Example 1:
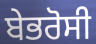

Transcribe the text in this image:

ਬੇਭਰੋਸੀ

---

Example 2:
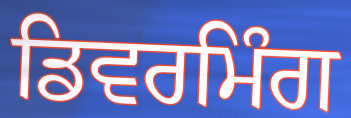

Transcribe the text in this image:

ਡਿਵਰਮਿੰਗ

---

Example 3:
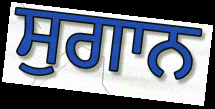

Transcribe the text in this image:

ਸੁਗਾਨ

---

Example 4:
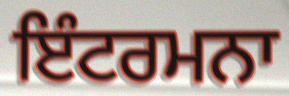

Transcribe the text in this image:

ਇੰਟਰਮਨਾ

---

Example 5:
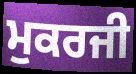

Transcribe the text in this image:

ਮੁਕਰਜੀ